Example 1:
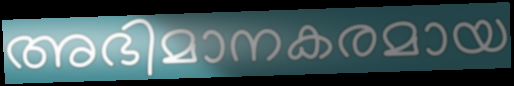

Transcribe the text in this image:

അഭിമാനകരമായ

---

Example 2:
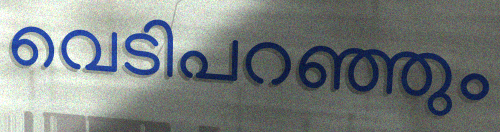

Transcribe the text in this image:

വെടിപറഞ്ഞും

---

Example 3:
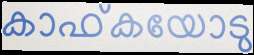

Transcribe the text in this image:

കാഫ്കയോടു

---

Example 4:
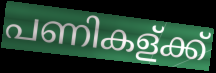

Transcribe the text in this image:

പണികള്ക്ക്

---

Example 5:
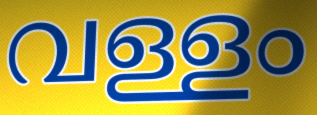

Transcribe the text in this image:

വള്ളം